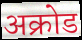
अक्रोड